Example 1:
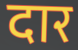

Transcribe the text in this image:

दार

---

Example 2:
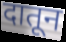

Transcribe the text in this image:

दातून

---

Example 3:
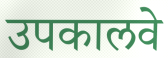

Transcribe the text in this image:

उपकालवे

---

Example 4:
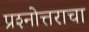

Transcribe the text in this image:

प्रश्‍नोत्तराचा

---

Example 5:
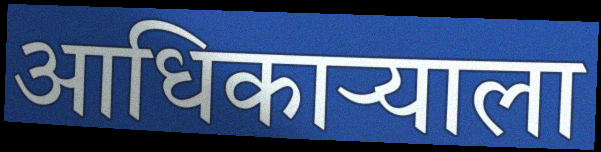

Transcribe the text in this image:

आधिकाऱ्याला